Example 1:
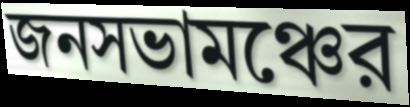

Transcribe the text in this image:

জনসভামঞ্চের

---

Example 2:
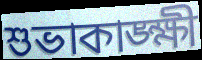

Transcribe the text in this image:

শুভাকাঙ্ক্ষী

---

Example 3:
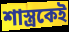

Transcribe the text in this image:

শাস্ত্রকেই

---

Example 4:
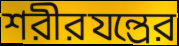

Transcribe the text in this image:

শরীরযন্ত্রের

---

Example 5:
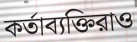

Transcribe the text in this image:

কর্তাব্যক্তিরাও